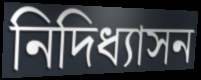
নিদিধ্যাসন